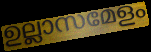
ഉല്ലാസമേളം